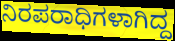
ನಿರಪರಾಧಿಗಳಾಗಿದ್ದ